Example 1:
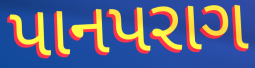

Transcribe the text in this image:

પાનપરાગ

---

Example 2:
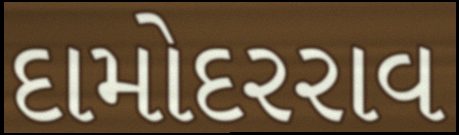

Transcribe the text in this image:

દામોદરરાવ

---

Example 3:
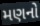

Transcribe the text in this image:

મણનો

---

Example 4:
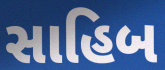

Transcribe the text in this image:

સાહિબ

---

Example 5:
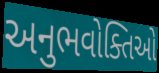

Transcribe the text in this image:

અનુભવોક્તિઓ